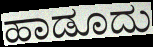
ಹಾಡೂದು